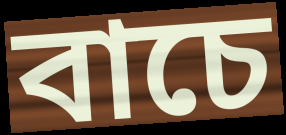
বাচে